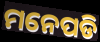
ମନେପଡି